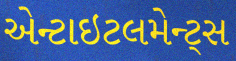
એન્ટાઇટલમેન્ટ્સ